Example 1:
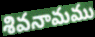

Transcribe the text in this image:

శివనామము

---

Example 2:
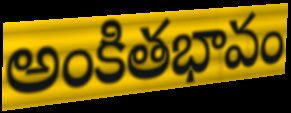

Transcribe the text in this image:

అంకితభావం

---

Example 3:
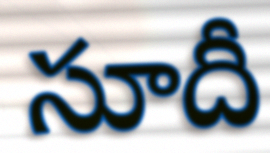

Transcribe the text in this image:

సూదీ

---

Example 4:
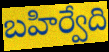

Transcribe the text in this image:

బహిర్వేది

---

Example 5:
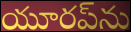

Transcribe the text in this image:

యూరప్‌ను